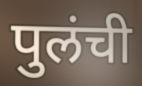
पुलंची